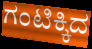
ಗಂಟಿಕ್ಕಿದ